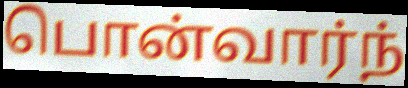
பொன்வார்ந்